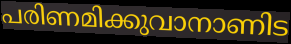
പരിണമിക്കുവാനാണിട